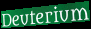
Deuterium